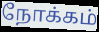
நோக்கம்